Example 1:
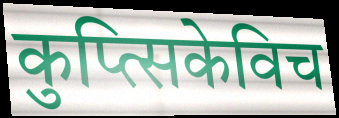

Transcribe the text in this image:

कुप्त्सिकेविच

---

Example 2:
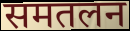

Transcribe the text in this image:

समतलन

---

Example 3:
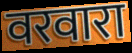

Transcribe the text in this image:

वरवारा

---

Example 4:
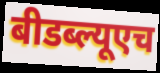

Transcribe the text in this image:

बीडब्ल्यूएच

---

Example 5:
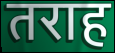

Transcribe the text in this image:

तराह